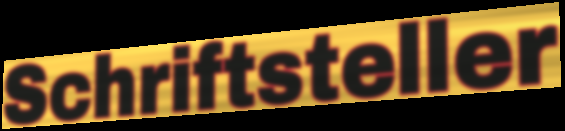
Schriftsteller